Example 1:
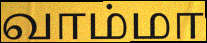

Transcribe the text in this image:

வாம்மா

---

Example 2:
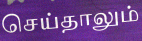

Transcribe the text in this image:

செய்தாலும்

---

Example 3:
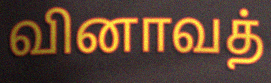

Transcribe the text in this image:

வினாவத்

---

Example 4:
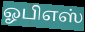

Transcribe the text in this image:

ஓபிஎஸ்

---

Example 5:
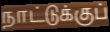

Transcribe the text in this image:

நாட்டுக்குப்